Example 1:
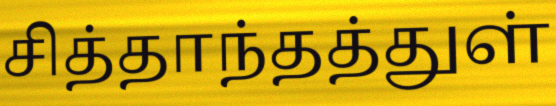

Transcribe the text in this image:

சித்தாந்தத்துள்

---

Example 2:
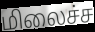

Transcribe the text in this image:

மிலைச்ச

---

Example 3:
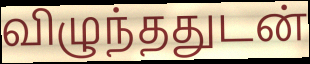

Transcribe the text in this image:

விழுந்ததுடன்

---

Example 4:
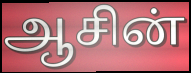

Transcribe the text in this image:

ஆசின்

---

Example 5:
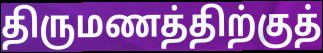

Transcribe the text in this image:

திருமணத்திற்குத்